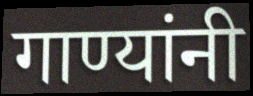
गाण्यांनी